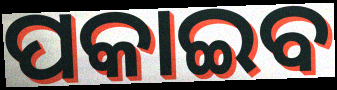
ପକାଇବ